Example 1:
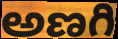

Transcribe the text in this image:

అణగి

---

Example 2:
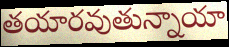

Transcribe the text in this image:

తయారవుతున్నాయా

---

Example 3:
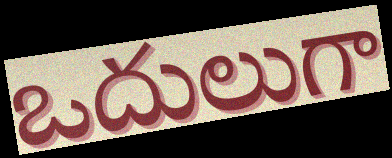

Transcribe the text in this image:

ఒదులుగా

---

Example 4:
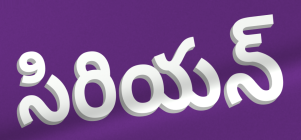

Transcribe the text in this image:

సిరియన్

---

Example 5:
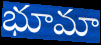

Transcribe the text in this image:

భూమా